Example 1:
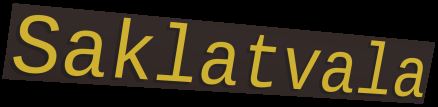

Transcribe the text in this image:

Saklatvala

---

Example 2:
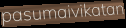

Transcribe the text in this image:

pasumaivikatan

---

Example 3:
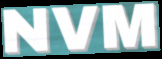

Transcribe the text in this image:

NVM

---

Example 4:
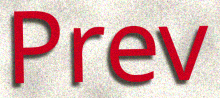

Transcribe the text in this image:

Prev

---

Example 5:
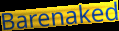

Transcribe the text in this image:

Barenaked